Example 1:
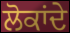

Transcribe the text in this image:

ਲੋਕਾਂਦੇ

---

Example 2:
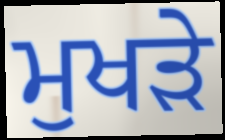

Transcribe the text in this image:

ਮੁਖੜੇ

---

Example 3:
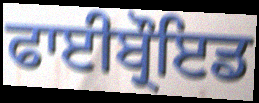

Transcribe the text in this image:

ਫਾਈਬ੍ਰੌਇਡ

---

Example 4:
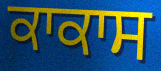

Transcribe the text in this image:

ਕਾਕਾਸ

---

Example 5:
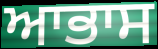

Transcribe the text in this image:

ਆਭਾਸ